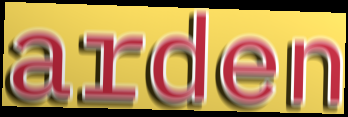
arden